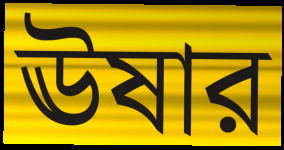
ঊষার